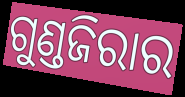
ଗୁଣ୍ଡଜିରାର